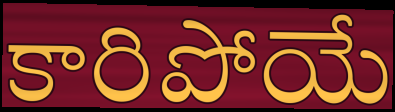
కారిపోయే